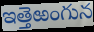
ఇత్తెఱంగున